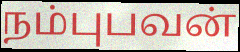
நம்புபவன்